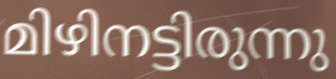
മിഴിനട്ടിരുന്നു